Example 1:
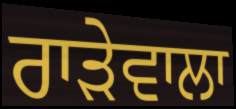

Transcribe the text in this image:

ਰਾੜੇਵਾਲਾ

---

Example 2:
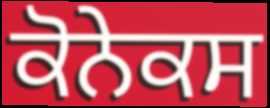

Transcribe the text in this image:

ਕੋਨੇਕਸ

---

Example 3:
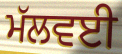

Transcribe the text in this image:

ਮੱਲਵਈ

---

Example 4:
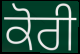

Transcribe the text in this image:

ਕੋਰੀ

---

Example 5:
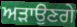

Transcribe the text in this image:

ਅੜਾਉਣਗੇ